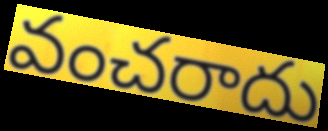
వంచరాదు